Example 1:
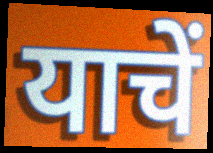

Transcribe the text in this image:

याचें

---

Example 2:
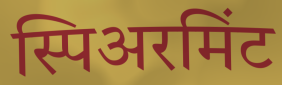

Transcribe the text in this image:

स्पिअरमिंट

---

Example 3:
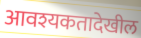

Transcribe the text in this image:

आवश्यकतादेखील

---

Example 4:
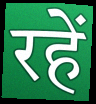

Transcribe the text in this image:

रहें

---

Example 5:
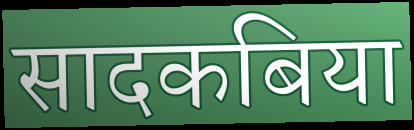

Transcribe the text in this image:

सादकबिया